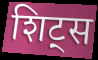
शिट्स